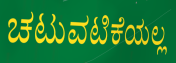
ಚಟುವಟಿಕೆಯಲ್ಲ